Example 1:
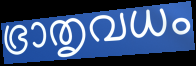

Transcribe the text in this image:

ഭ്രാതൃവധം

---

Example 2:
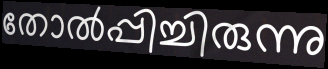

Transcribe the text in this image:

തോൽപ്പിച്ചിരുന്നു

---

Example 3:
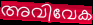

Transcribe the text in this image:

അവിവേക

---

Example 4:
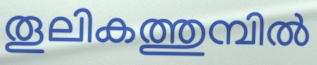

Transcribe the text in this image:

തൂലികത്തുമ്പിൽ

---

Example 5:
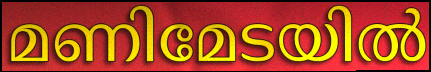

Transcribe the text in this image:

മണിമേടയിൽ